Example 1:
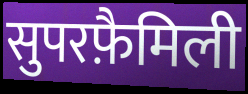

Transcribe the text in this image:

सुपरफ़ैमिली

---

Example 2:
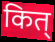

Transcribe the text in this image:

कित्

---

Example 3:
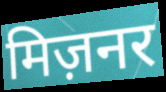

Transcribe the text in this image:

मिज़नर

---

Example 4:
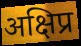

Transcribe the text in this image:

अक्षिप्र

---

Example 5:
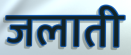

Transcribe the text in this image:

जलाती